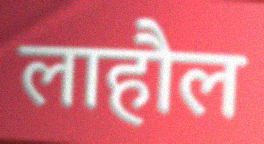
लाहौल